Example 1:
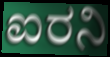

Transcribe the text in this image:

ಐರನಿ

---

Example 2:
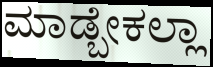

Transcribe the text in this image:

ಮಾಡ್ಬೇಕಲ್ಲಾ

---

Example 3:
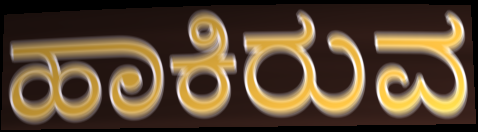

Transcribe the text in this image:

ಹಾಕಿರುವ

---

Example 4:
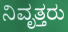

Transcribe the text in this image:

ನಿವೃತ್ತರು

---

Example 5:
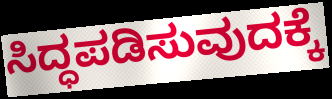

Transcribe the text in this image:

ಸಿದ್ಧಪಡಿಸುವುದಕ್ಕೆ